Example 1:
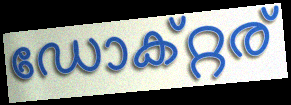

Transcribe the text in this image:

ഡോക്റ്റര്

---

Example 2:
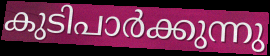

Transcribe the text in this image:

കുടിപാർക്കുന്നു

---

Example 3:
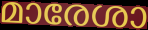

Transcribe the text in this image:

മാരേശാ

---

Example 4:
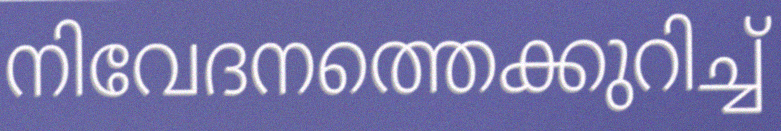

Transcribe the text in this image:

നിവേദനത്തെക്കുറിച്ച്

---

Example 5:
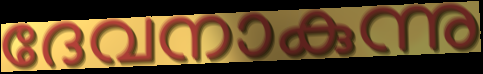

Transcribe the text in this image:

ദേവനാകുന്നു